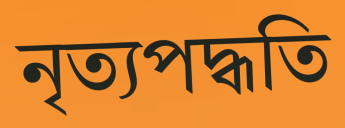
নৃত্যপদ্ধতি